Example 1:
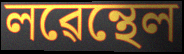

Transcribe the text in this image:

লৱেন্থেল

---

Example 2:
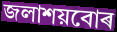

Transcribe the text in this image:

জলাশয়বোৰ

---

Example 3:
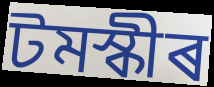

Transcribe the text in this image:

টমস্কীৰ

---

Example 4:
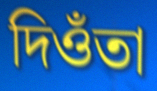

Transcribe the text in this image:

দিওঁতা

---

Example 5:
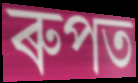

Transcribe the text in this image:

ৰুপত